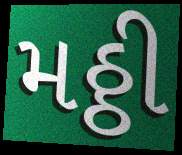
મઠ્ઠી